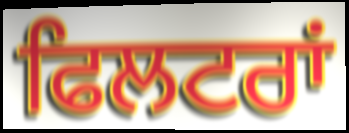
ਫਿਲਟਰਾਂ